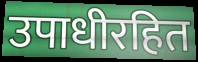
उपाधीरहित